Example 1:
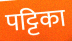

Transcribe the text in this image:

पट्टिका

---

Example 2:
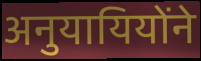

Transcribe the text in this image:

अनुयायियोंने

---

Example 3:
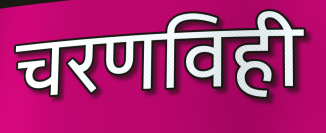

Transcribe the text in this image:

चरणविही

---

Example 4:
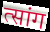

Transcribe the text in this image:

त्सांग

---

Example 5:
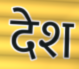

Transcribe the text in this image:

देश